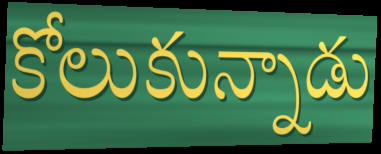
కోలుకున్నాడు